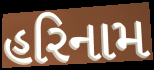
હરિનામ